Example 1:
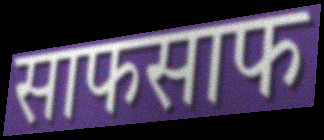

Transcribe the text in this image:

साफसाफ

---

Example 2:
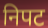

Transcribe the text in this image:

निपट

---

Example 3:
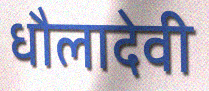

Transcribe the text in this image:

धौलादेवी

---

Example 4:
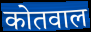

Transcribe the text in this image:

कोतवाल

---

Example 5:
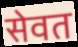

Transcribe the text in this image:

सेवत